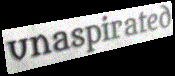
unaspirated